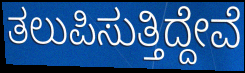
ತಲುಪಿಸುತ್ತಿದ್ದೇವೆ